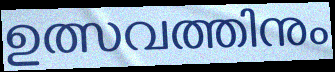
ഉത്സവത്തിനും